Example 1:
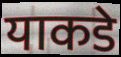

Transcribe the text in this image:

याकडे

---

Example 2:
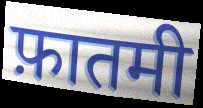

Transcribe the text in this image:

फ़ातमी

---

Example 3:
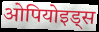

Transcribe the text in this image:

ओपियोइड्स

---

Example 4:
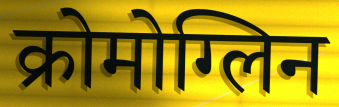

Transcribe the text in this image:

क्रोमोग्लिन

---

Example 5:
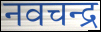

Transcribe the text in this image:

नवचन्द्र